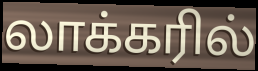
லாக்கரில்